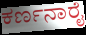
ಕರ್ಣನಾರೈ